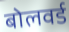
बोलवर्ड